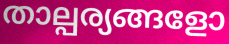
താല്പര്യങ്ങളോ